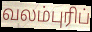
வலம்புரிப்